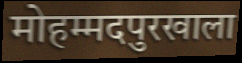
मोहम्मदपुरखाला